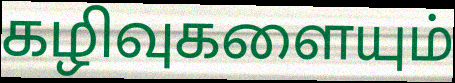
கழிவுகளையும்